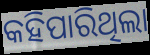
କହିପାରିଥିଲା